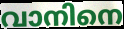
വാനിനെ